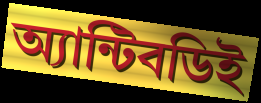
অ্যান্টিবডিই